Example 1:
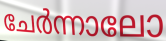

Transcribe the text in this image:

ചേർന്നാലോ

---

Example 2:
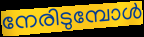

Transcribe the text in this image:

നേരിടുമ്പോൾ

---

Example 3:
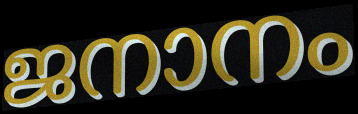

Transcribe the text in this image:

ജനാനം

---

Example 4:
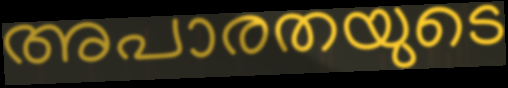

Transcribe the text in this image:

അപാരതയുടെ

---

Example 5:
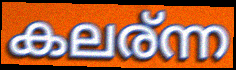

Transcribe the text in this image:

കലര്ന്ന